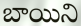
బాయిని